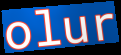
olur